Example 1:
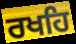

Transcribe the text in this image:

ਰਖਹਿ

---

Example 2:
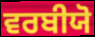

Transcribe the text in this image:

ਵਰਬੀਯੋ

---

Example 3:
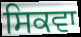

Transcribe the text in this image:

ਸਿਕਵਾ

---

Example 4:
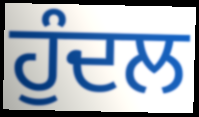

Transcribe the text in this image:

ਹੁੰਦਲ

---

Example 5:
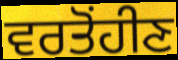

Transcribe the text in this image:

ਵਰਤੋਂਹੀਣ